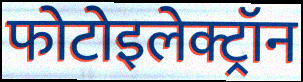
फोटोइलेक्ट्रॉन